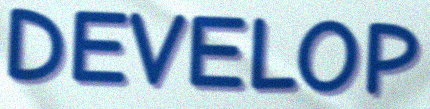
DEVELOP